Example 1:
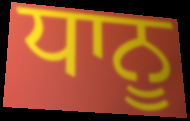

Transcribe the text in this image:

ਧਾਨੂ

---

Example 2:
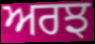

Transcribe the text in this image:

ਅਰਝ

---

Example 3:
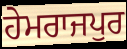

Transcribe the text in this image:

ਹੇਮਰਾਜਪੁਰ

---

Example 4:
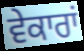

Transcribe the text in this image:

ਵੇਕਾਰਾਂ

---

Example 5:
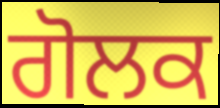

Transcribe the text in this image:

ਗੋਲਕ